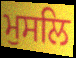
ਮੁਸਲਿ